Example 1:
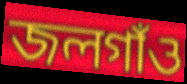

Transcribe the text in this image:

জলগাঁও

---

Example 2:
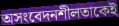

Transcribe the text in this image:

অসংবেদনশীলতাকেই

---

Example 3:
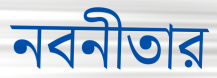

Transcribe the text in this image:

নবনীতার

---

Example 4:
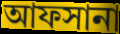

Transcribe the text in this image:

আফসানা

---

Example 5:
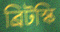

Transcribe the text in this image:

ব্রিটস্কি